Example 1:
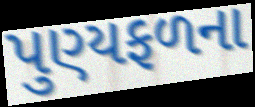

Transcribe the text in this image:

પુણ્યફળના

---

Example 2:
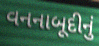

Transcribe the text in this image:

વનનાબૂદીનું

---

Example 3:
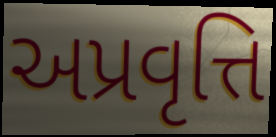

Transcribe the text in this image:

અપ્રવૃત્તિ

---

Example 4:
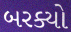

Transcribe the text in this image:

બરક્યો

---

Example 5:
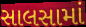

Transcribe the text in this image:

સાલસામાં